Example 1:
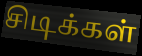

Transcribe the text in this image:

சிடிக்கள்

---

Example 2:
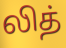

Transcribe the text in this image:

லித்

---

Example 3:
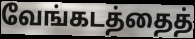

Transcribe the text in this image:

வேங்கடத்தைத்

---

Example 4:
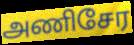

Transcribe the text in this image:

அணிசேர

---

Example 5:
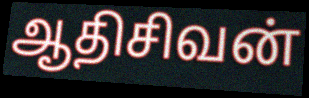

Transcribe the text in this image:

ஆதிசிவன்